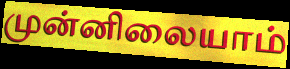
முன்னிலையாம்